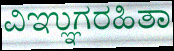
ವಿಞ್ಞುಗರಹಿತಾ